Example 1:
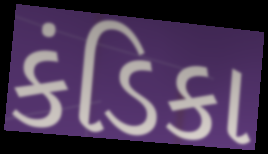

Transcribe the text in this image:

કંડિકા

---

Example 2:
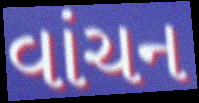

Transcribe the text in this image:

વાંચન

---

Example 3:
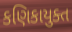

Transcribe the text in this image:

કણિકાયુક્ત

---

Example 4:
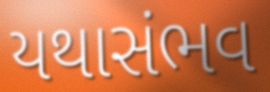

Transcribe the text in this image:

યથાસંભવ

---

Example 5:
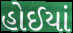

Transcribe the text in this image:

હોઈયાં